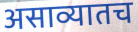
असाव्यातच